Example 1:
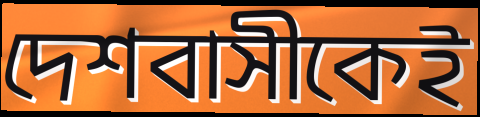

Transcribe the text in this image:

দেশবাসীকেই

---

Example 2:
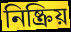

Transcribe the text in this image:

নিষ্ক্রিয়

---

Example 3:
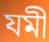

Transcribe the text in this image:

যমী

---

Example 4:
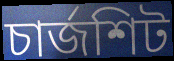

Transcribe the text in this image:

চার্জশিট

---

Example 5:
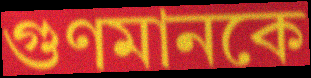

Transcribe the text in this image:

গুণমানকে